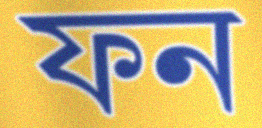
ফন